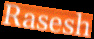
Rasesh